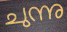
ചുന്നു